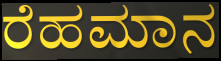
ರೆಹಮಾನ